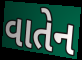
વાતેન